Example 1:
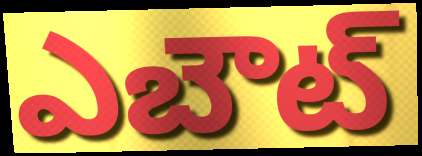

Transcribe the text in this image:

ఎబౌట్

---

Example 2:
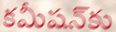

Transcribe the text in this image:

కమీషన్‌కు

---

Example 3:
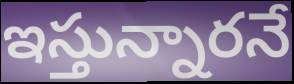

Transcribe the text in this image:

ఇస్తున్నారనే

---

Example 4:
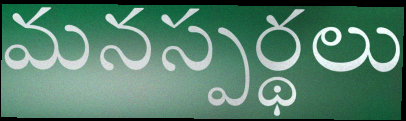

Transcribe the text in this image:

మనస్పర్థలు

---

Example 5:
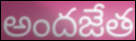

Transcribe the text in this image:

అందజేత